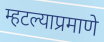
म्हटल्याप्रमाणे